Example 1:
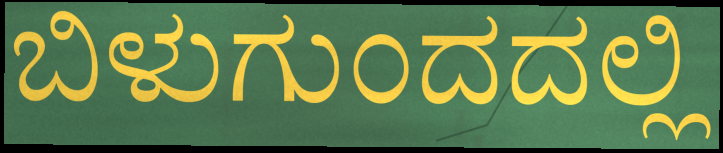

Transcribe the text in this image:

ಬಿಳುಗುಂದದಲ್ಲಿ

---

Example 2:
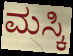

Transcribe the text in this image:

ಮಸ್ಕಿ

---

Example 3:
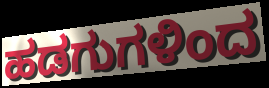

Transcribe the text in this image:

ಹಡಗುಗಳಿಂದ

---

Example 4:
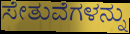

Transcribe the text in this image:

ಸೇತುವೆಗಳನ್ನು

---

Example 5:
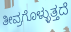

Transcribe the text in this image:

ತೀವ್ರಗೊಳ್ಳುತ್ತದೆ